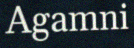
Agamni